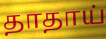
தாதாய்